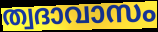
ത്വദാവാസം